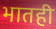
भातही